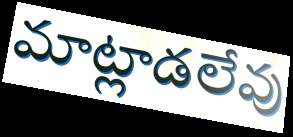
మాట్లాడలేవు